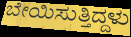
ಬೇಯಿಸುತ್ತಿದ್ದಳು